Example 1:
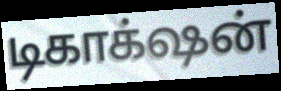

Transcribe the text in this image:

டிகாக்‌ஷன்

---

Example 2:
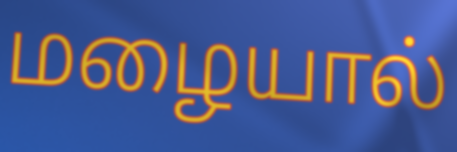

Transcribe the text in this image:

மழையால்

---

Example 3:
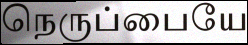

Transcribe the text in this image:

நெருப்பையே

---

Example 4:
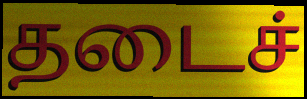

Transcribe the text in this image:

தடைச்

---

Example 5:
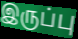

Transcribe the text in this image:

இருப்பு